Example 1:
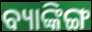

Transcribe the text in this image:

ବ୍ୟାଙ୍କିଙ୍ଗ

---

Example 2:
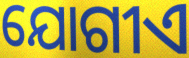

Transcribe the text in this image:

ଯୋଗୀଏ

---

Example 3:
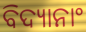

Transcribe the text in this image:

ବିଦ୍ୟାନାଂ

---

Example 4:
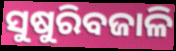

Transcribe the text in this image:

ସୁଷୁରିବଜାଳି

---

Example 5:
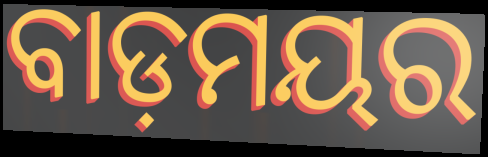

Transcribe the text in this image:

ବାଡ଼ମୟର